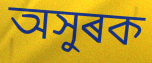
অসুৰক